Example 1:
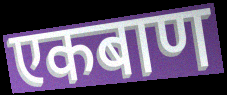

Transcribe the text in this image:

एकबाण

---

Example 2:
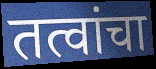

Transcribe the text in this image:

तत्वांचा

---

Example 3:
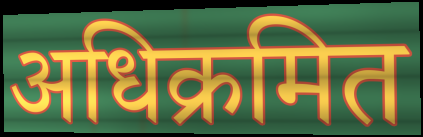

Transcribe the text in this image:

अधिक्रमित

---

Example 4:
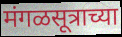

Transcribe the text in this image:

मंगळसूत्राच्या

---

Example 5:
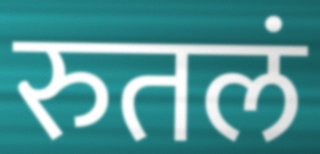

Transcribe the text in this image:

रुतलं